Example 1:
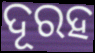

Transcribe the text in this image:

ଦୂରହ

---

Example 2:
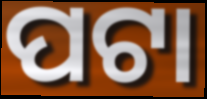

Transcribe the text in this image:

ପଟା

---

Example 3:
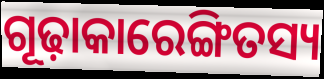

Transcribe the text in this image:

ଗୂଢ଼ାକାରେଙ୍ଗିତସ୍ୟ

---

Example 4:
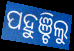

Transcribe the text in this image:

ପହୁଞ୍ଚିଲୁ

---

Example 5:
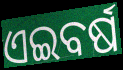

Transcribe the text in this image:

ଏଇବର୍ଷ